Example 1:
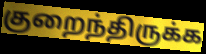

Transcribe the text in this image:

குறைந்திருக்க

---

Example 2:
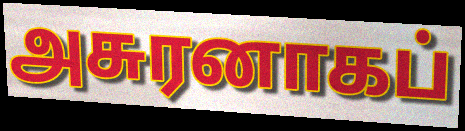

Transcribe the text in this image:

அசுரனாகப்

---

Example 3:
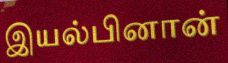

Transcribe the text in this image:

இயல்பினான்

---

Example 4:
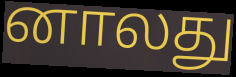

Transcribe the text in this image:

னாலது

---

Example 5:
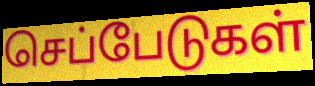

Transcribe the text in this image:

செப்பேடுகள்